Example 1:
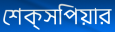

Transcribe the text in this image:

শেক্‌সপিয়ার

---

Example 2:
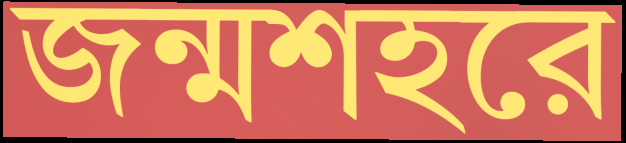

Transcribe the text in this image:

জন্মশহরে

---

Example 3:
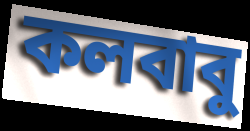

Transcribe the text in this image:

কলবাবু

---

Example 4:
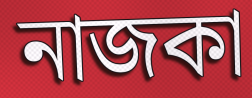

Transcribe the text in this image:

নাজকা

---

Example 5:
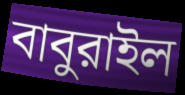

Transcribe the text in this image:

বাবুরাইল